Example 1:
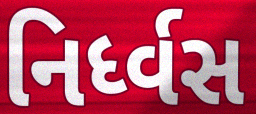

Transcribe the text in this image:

નિર્ધ્વસ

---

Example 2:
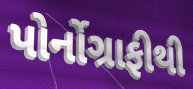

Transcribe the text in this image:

પોર્નોગ્રાફીથી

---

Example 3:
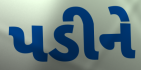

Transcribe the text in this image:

પડીને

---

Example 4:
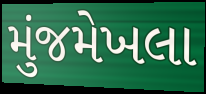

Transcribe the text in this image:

મુંજમેખલા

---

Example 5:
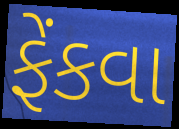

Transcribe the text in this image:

ફેંકવા